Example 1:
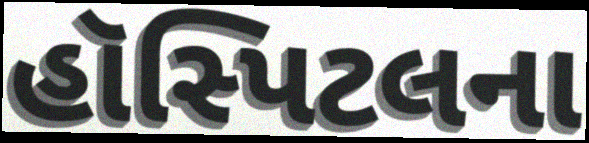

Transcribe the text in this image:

હૉસ્પિટલના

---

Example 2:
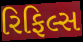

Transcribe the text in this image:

રિફિલ્સ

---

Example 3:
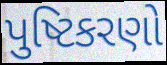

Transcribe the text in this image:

પુષ્ટિકરણો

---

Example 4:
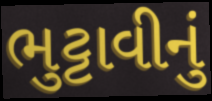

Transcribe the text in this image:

ભુટ્ટાવીનું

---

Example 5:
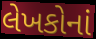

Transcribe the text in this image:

લેખકોનાં